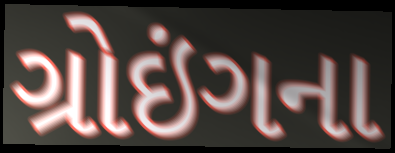
ગ્રોઇંગના